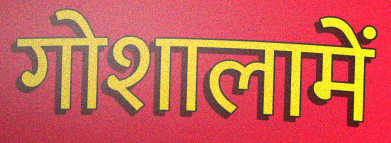
गोशालामें